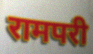
रामपरी